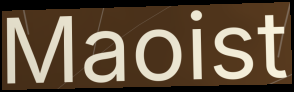
Maoist